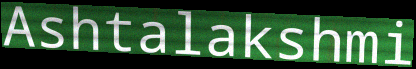
Ashtalakshmi